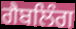
ਗੈਬਲਿੰਗ